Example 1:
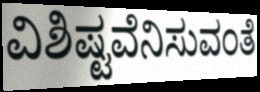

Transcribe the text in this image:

ವಿಶಿಷ್ಟವೆನಿಸುವಂತೆ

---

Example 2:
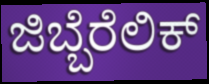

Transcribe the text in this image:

ಜಿಬ್ಬೆರೆಲಿಕ್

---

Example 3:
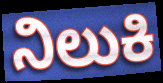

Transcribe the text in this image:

ನಿಲುಕಿ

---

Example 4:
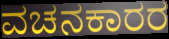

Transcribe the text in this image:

ವಚನಕಾರರ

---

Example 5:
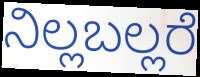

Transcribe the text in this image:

ನಿಲ್ಲಬಲ್ಲರೆ